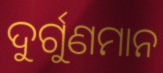
ଦୁର୍ଗୁଣମାନ